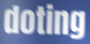
doting